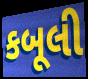
કબૂલી